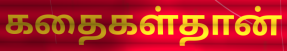
கதைகள்தான்